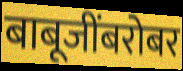
बाबूजींबरोबर